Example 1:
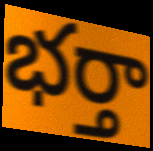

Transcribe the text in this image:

భర్తా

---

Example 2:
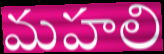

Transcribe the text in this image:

మహలి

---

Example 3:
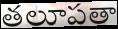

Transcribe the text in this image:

తలూపతా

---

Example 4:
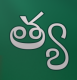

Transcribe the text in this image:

త్య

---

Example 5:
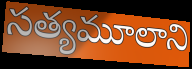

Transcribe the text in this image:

సత్యమూలాని